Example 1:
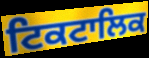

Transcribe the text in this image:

ਟਿਕਟਾਲਿਕ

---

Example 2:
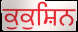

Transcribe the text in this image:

ਕੁਕੁਸ਼ਿਨ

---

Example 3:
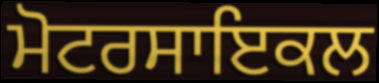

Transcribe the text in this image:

ਮੋਟਰਸਾਇਕਲ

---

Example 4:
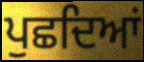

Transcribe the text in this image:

ਪੁਛਦਿਆਂ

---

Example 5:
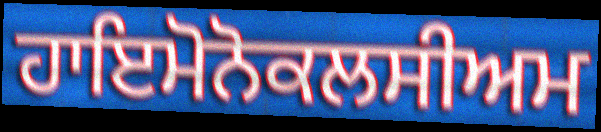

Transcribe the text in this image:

ਹਾਇਮੋਨੋਕਲਸੀਅਮ